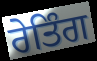
ਰੇਤਿੰਗ